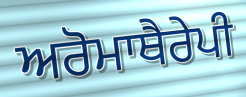
ਅਰੋਮਾਥੈਰੇਪੀ